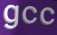
gcc